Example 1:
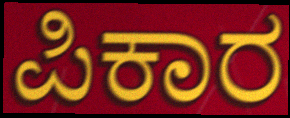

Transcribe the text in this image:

ಪಿಕಾರ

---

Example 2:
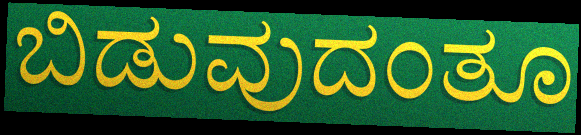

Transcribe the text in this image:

ಬಿಡುವುದಂತೂ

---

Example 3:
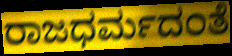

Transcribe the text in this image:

ರಾಜಧರ್ಮದಂತೆ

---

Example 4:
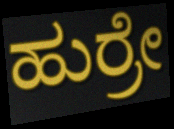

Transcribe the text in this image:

ಹುರ್ರೇ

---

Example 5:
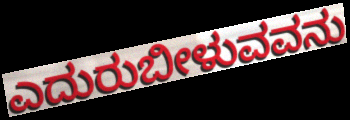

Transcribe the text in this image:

ಎದುರುಬೀಳುವವನು